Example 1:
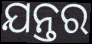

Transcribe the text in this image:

ଯନ୍ତର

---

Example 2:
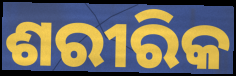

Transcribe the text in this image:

ଶରୀରିକ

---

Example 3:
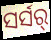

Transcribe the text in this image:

ସର୍ସର୍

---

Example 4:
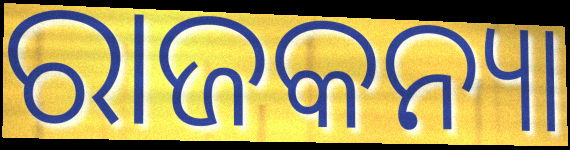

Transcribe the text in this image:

ରାଜକନ୍ୟା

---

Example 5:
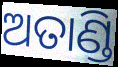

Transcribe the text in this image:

ଅତାଣ୍ଡି